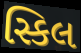
સ્કિલ